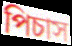
পিচাস